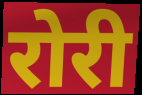
रोरी